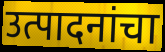
उत्पादनांचा